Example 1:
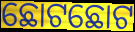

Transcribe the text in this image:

ଛୋଟଛୋଟ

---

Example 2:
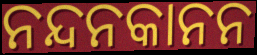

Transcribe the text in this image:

ନନ୍ଦନକାନନ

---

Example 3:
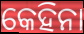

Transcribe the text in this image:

କେହିନା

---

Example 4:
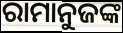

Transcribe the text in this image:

ରାମାନୁଜଙ୍କ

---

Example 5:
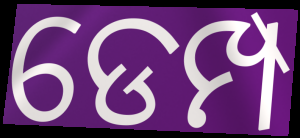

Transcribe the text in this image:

ଡେମ୍ପ